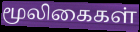
மூலிகைகள்